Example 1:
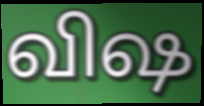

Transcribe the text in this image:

விஷ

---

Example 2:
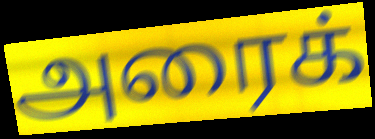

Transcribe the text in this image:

அரைக்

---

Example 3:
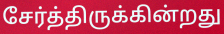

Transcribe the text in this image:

சேர்த்திருக்கின்றது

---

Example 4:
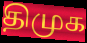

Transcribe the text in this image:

திமுக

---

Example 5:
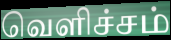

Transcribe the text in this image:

வெளிச்சம்